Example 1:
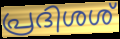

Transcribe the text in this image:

പ്രദിശശ്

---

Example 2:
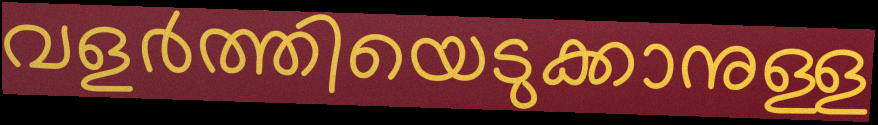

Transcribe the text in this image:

വളർത്തിയെടുക്കാനുള്ള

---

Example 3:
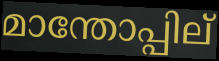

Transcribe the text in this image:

മാന്തോപ്പില്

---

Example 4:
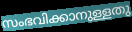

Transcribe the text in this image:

സംഭവിക്കാനുള്ളതു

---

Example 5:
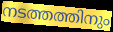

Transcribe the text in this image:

നടത്തത്തിനും